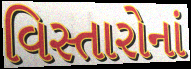
વિસ્તારોનાં